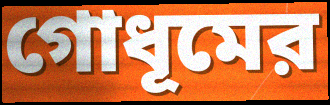
গোধূমের